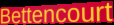
Bettencourt